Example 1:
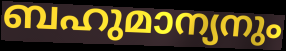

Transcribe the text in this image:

ബഹുമാന്യനും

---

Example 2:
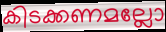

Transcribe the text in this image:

കിടക്കണമല്ലോ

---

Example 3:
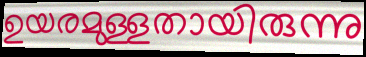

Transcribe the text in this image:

ഉയരമുള്ളതായിരുന്നു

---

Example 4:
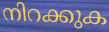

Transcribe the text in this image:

നിറക്കുക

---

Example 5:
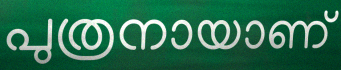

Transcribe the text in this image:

പുത്രനായാണ്